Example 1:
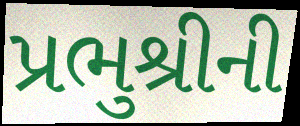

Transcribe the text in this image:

પ્રભુશ્રીની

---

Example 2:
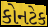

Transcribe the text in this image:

કોનટેક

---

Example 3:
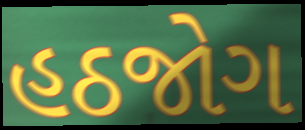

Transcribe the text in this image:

હઠજોગ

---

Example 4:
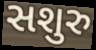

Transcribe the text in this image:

સશુરુ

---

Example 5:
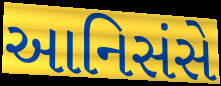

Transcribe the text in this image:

આનિસંસે